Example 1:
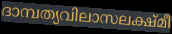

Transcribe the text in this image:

ദാമ്പത്യവിലാസലക്ഷ്മീ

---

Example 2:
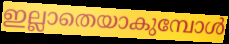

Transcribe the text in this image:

ഇല്ലാതെയാകുമ്പോൾ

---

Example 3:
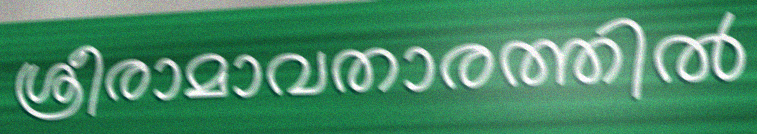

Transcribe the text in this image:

ശ്രീരാമാവതാരത്തിൽ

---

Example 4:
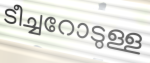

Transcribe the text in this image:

ടീച്ചറോടുള്ള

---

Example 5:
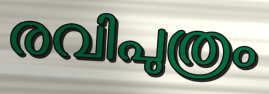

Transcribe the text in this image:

രവിപുത്രം